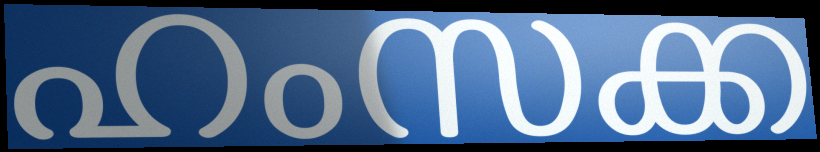
ഹംസക്ക